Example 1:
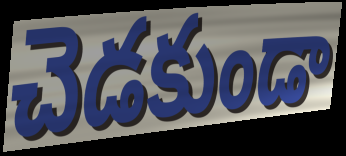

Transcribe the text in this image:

చెడకుండా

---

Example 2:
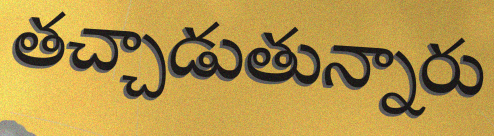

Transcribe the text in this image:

తచ్చాడుతున్నారు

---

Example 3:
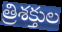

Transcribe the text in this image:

త్రిశక్తుల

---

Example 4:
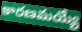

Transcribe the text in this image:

కారణమయ్యే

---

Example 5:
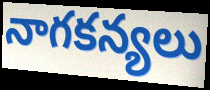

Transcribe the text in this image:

నాగకన్యలు